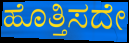
ಹೊತ್ತಿಸದೇ